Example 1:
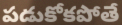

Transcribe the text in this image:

పడుకోకపోతే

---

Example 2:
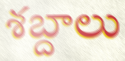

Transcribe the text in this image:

శబ్దాలు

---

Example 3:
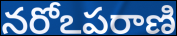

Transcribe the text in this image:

నరోఽపరాణి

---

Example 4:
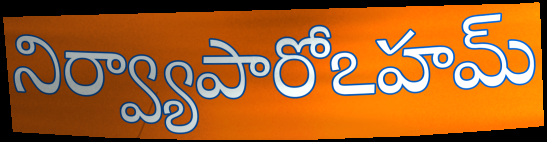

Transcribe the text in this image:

నిర్వ్యాపారోఽహమ్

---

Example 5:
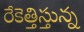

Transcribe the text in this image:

రేకెత్తిస్తున్న